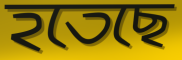
হতেছে